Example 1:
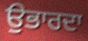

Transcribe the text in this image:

ਉਭਾਰਦਾ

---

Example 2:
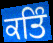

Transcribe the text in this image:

ਕਤਿੰ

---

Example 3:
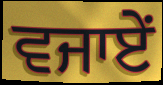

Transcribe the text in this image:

ਵਜਾਏਂ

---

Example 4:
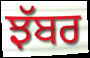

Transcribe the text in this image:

ਝੱਬਰ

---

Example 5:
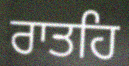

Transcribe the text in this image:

ਰਾਤਹਿ